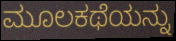
ಮೂಲಕಥೆಯನ್ನು